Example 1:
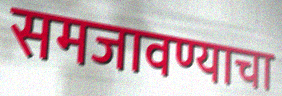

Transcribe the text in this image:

समजावण्याचा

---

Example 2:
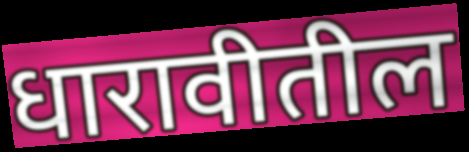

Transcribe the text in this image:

धारावीतील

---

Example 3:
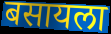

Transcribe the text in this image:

बसायला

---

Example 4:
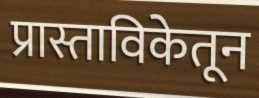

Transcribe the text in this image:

प्रास्ताविकेतून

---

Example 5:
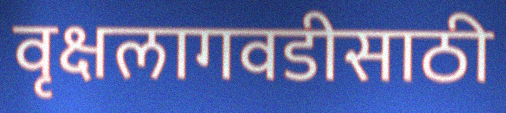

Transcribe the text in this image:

वृक्षलागवडीसाठी